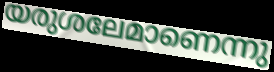
യരുശലേമാണെന്നു